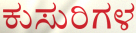
ಕುಸುರಿಗಳ